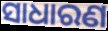
ସାଧାରଣ